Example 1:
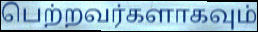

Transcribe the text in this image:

பெற்றவர்களாகவும்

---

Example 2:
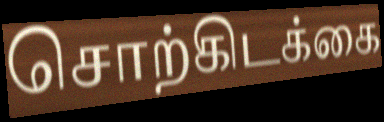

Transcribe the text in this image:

சொற்கிடக்கை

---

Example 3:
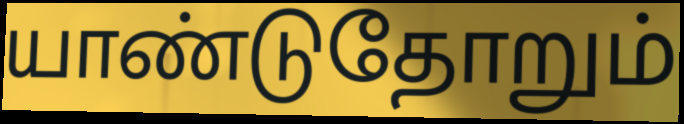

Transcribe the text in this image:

யாண்டுதோறும்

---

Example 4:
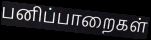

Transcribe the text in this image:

பனிப்பாறைகள்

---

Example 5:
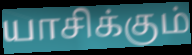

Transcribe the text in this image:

யாசிக்கும்